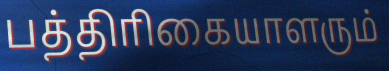
பத்திரிகையாளரும்